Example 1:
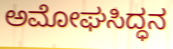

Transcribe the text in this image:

ಅಮೋಘಸಿದ್ಧನ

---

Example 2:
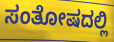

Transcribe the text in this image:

ಸಂತೋಷದಲ್ಲಿ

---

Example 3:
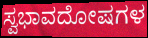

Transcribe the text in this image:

ಸ್ವಭಾವದೋಷಗಳ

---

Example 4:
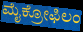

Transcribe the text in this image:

ಮೈಕ್ರೋಫಿಲಂ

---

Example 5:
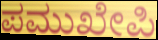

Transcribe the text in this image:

ಪಮುಖೇಪಿ